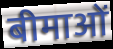
बीमाओं